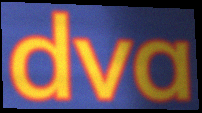
dva